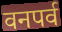
वनपर्व